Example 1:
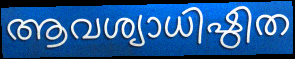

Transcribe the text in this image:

ആവശ്യാധിഷ്ഠിത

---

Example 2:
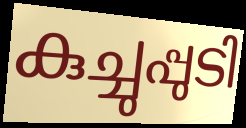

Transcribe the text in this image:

കുച്ചുപ്പുടി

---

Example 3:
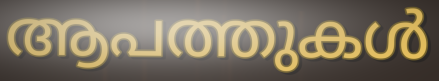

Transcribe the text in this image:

ആപത്തുകൾ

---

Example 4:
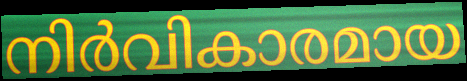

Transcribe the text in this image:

നിർവികാരമായ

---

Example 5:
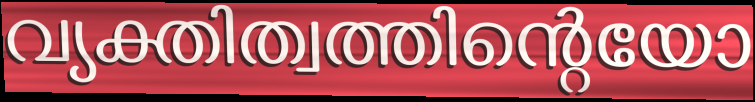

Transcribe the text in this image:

വ്യക്തിത്വത്തിന്റെയോ